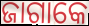
ଜାଗାକେ